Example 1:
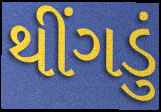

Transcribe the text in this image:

થીંગડું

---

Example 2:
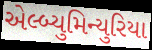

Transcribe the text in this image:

એલ્બ્યુમિન્યુરિયા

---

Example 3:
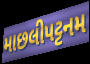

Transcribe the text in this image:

માછલીપટ્ટનમ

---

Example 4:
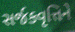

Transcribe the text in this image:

સર્જકવૃત્તિને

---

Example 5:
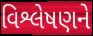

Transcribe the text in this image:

વિશ્લેષણને